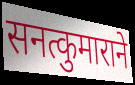
सनत्कुमाराने